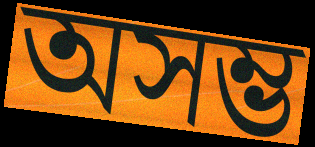
অসম্ভ